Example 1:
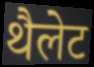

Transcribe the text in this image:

थैलेट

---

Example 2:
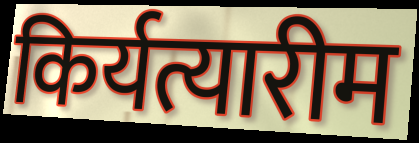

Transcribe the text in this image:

किर्यत्यारीम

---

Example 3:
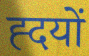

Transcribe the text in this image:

ह्दयों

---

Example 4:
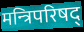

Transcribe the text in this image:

मन्त्रिपरिषद्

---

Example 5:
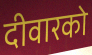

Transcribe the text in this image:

दीवारको